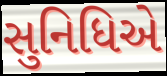
સુનિધિએ